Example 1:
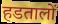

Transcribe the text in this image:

हडतालों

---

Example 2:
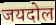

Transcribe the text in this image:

जयदोल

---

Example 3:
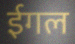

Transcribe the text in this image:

ईगल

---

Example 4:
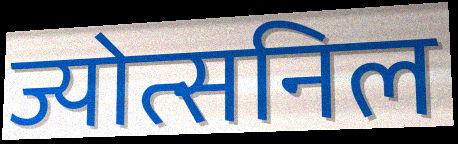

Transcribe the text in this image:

ज्योत्सनिल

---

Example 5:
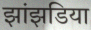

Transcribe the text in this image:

झांझडिया